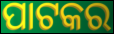
ପାଟକର